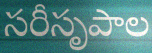
సరీసృపాల